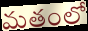
మతంలో